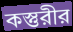
কস্তুরীর